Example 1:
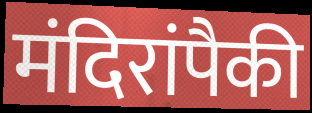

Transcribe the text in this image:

मंदिरांपैकी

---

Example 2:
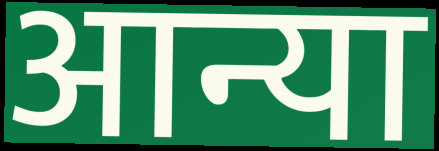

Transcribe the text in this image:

आन्या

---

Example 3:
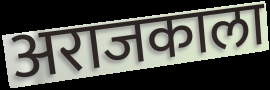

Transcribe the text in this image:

अराजकाला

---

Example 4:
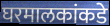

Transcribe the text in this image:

घरमालकांकडे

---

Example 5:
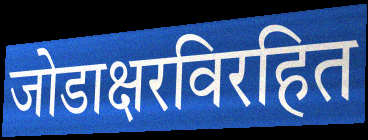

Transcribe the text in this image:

जोडाक्षरविरहित